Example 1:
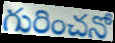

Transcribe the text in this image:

గురించనో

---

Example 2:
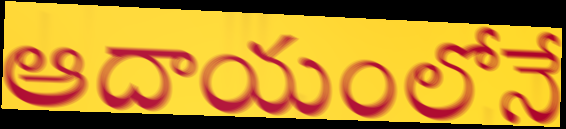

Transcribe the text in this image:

ఆదాయంలోనే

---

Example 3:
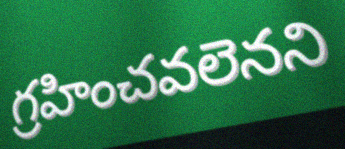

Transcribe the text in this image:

గ్రహించవలెనని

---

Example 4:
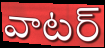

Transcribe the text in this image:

వాటర్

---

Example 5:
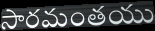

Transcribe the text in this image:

సారమంతయు